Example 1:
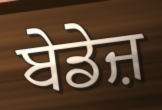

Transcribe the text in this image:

ਬੇਡੇਜ਼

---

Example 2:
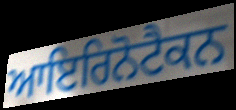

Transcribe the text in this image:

ਆਇਰਿਨੋਟੈਕਨ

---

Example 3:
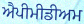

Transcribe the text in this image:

ਐਪੀਮੀਡੀਅਮ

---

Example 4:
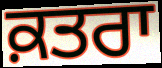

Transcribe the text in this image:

ਕ਼ਤਰਾ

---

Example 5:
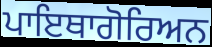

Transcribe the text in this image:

ਪਾਇਥਾਗੋਰਿਅਨ